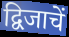
द्विजाचें